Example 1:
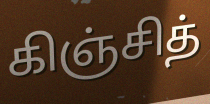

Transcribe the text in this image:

கிஞ்சித்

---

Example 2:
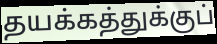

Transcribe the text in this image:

தயக்கத்துக்குப்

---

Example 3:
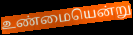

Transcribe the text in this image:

உண்மையென்று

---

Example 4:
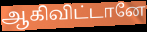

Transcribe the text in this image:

ஆகிவிட்டானே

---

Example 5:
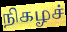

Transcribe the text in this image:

நிகழச்